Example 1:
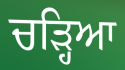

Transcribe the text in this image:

ਚਡ਼੍ਹਿਆ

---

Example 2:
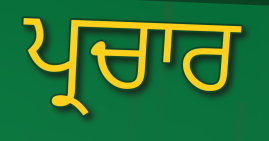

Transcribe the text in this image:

ਪ੍ਰਚਾਰ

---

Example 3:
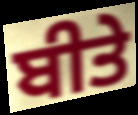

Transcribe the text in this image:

ਬੀਤੇ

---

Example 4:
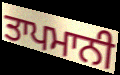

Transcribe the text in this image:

ਤਾਪਮਾਨੀ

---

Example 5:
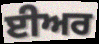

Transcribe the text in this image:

ਈਅਰ